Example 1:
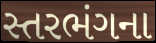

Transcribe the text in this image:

સ્તરભંગના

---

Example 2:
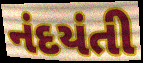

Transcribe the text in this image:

નંદયંતી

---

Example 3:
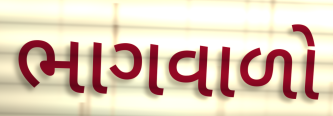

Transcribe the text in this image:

ભાગવાળો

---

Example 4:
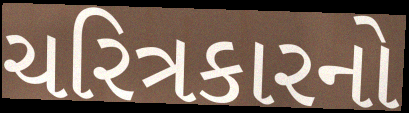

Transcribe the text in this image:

ચરિત્રકારનો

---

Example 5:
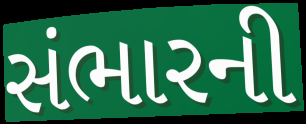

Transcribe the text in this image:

સંભારની